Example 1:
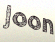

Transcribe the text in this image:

Joon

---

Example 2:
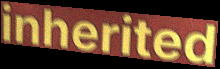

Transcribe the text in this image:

inherited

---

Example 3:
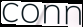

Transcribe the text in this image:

conn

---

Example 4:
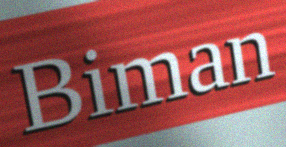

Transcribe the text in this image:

Biman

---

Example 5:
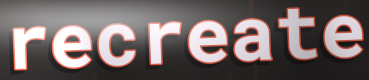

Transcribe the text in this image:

recreate